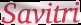
Savitri